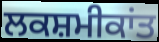
ਲਕਸ਼ਮੀਕਾਂਤ